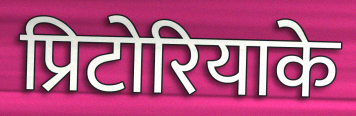
प्रिटोरियाके